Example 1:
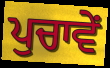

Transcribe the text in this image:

ਪੁਚਾਵੇਂ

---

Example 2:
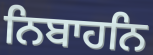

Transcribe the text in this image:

ਨਿਬਾਹਨਿ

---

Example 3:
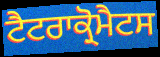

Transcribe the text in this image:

ਟੈਟਰਾਕ੍ਰੋਮੈਟਸ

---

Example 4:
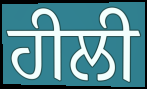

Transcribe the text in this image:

ਹੀਲੀ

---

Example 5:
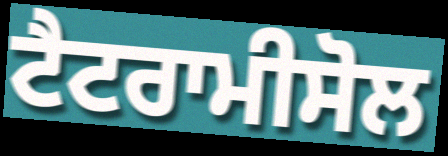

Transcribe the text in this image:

ਟੈਟਰਾਮੀਸੋਲ